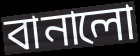
বানালো